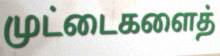
முட்டைகளைத்